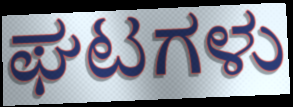
ಘಟಗಳು